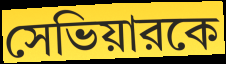
সেভিয়ারকে